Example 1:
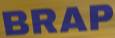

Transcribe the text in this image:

BRAP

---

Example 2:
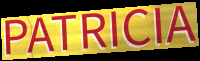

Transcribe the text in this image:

PATRICIA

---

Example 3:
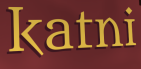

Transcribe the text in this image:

katni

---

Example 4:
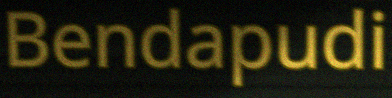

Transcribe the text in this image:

Bendapudi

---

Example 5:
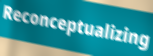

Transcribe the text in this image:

Reconceptualizing